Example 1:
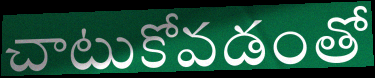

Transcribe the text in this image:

చాటుకోవడంతో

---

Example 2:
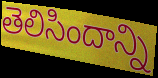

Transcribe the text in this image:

తెలిసిందాన్ని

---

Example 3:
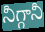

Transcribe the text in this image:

నీగ్గానీ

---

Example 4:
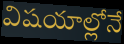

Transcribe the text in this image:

విషయాల్లోనే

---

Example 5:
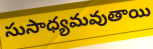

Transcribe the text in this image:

సుసాధ్యమవుతాయి